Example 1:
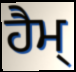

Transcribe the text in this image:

ਹੈਮ੍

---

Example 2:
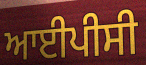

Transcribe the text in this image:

ਆਈਪੀਸੀ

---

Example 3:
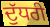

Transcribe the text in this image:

ਦੁੱਧਰੀ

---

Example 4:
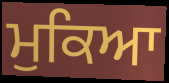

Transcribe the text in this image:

ਮੁਕਿਆ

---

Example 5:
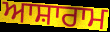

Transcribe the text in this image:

ਆਸ਼ਾਰਾਮ